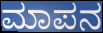
ಮಾಪನ